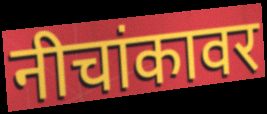
नीचांकावर